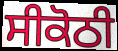
ਸੀਕੋਠੀ